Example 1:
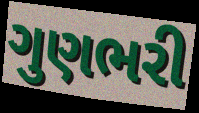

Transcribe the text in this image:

ગુણભરી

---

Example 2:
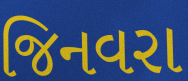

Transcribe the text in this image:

જિનવરા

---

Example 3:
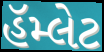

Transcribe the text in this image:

હૅમ્લેટ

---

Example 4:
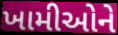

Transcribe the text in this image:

ખામીઓને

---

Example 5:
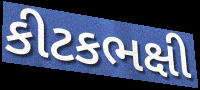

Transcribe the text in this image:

કીટકભક્ષી